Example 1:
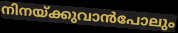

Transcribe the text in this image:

നിനയ്ക്കുവാൻപോലും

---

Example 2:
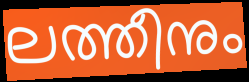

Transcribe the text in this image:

ലത്തീനും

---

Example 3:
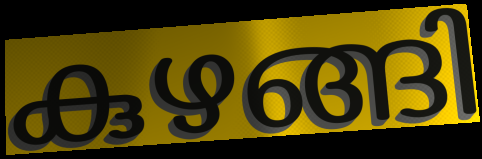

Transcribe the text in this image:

കുഴങ്ങി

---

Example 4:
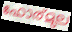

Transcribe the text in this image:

ഫോര്മുല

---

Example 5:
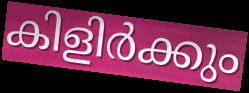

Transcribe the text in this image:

കിളിർക്കും